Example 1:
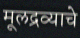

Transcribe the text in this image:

मूलद्रव्याचे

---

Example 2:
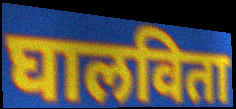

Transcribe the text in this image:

घालविता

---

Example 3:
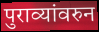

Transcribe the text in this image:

पुराव्यांवरुन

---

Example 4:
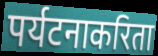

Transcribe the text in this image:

पर्यटनाकरिता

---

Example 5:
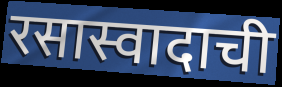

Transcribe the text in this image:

रसास्वादाची